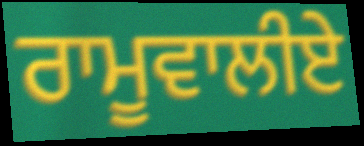
ਰਾਮੂਵਾਲੀਏ